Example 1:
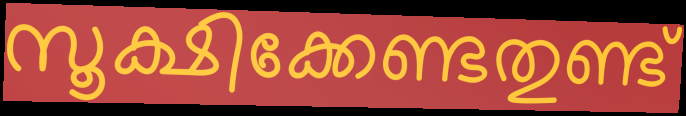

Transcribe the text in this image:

സൂക്ഷിക്കേണ്ടതുണ്ട്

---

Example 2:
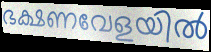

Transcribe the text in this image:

ഭക്ഷണവേളയിൽ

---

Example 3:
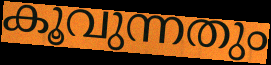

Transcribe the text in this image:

കൂവുന്നതും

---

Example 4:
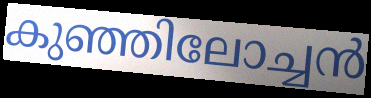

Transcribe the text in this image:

കുഞ്ഞിലോച്ചൻ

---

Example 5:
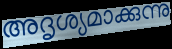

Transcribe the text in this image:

അദൃശ്യമാക്കുന്നു